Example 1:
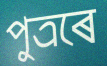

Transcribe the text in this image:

পুত্ৰৰে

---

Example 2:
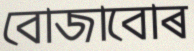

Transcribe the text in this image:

বোজাবোৰ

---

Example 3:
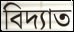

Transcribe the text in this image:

বিদ্যাত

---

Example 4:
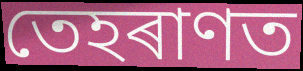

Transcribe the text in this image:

তেহৰাণত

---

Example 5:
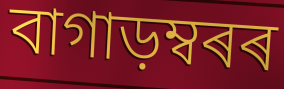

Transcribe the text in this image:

বাগাড়ম্বৰৰ